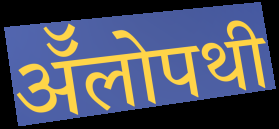
ॲॅलोपथी